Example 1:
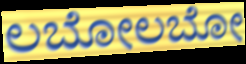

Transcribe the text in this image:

ಲಬೋಲಬೋ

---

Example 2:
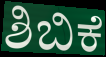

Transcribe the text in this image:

ಶಿಬಿಕೆ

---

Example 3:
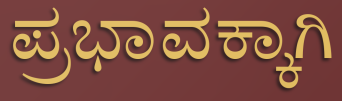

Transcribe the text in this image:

ಪ್ರಭಾವಕ್ಕಾಗಿ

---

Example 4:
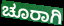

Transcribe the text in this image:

ಚೂರಾಗಿ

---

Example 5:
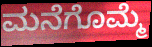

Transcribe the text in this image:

ಮನೆಗೊಮ್ಮೆ